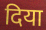
दिया